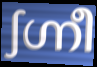
ഽഗ്നീ